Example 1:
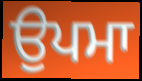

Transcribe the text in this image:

ਉਪਮਾ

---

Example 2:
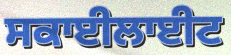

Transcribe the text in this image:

ਸਕਾਈਲਾਈਟ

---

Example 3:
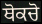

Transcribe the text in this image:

ਥੋਕਚੋ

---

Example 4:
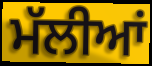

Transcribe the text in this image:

ਮੱਲੀਆਂ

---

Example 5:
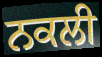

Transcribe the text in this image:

ਨਕਲੀ